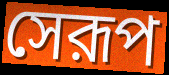
সেরূপ